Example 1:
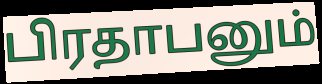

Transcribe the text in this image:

பிரதாபனும்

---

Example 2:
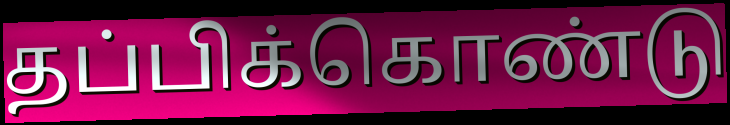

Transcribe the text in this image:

தப்பிக்கொண்டு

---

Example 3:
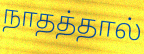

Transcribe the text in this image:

நாதத்தால்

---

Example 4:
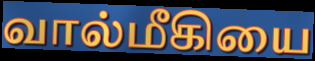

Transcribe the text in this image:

வால்மீகியை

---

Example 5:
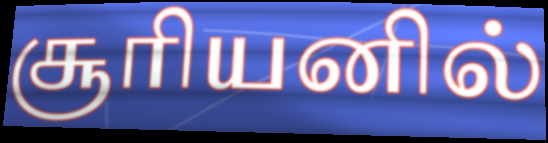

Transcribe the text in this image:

சூரியனில்